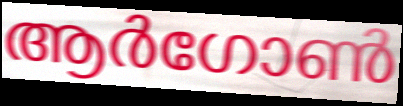
ആർഗോൺ